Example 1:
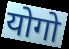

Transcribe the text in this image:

योगो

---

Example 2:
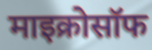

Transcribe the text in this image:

माइक्रोसॉफ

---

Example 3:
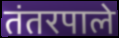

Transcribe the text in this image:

तंतरपाले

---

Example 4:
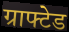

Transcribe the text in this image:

ग्राफ्टेड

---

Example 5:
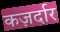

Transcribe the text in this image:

कज़र्दार